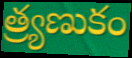
త్ర్యణుకం